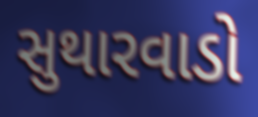
સુથારવાડો